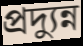
প্রদ্যুন্ন